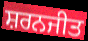
ਸ਼ਰਨਜੀਤ